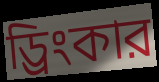
ড্রিংকার